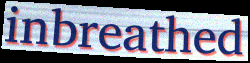
inbreathed